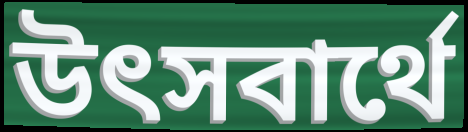
উৎসবার্থে